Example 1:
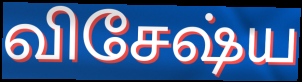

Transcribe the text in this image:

விசேஷ்ய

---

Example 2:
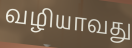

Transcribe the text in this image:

வழியாவது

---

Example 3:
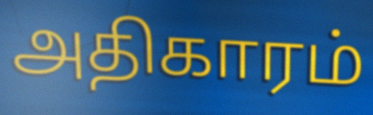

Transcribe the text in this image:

அதிகாரம்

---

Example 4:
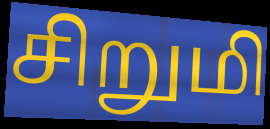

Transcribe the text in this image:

சிறுமி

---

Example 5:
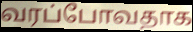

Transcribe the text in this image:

வரப்போவதாக